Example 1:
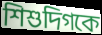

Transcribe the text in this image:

শিশুদিগকে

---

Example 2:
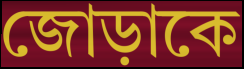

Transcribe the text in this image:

জোড়াকে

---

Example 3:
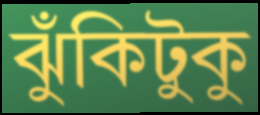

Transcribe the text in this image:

ঝুঁকিটুকু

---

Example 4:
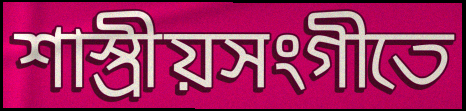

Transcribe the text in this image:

শাস্ত্রীয়সংগীতে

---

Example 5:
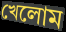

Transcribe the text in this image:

খেলোম